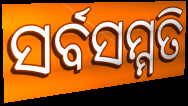
ସର୍ବସମ୍ମତି